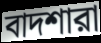
বাদশারা